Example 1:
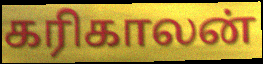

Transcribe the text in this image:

கரிகாலன்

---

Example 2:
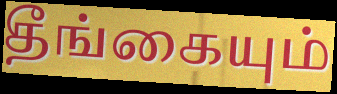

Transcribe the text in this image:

தீங்கையும்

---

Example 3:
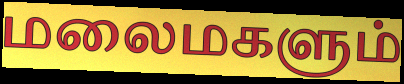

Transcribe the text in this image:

மலைமகளும்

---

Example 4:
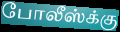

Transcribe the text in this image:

போலீஸ்க்கு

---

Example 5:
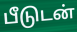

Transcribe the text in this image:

பீடுடன்